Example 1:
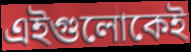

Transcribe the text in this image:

এইগুলোকেই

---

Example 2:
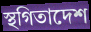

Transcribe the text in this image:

স্থগিতাদেশ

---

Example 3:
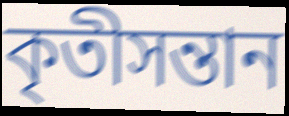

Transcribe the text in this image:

কৃতীসন্তান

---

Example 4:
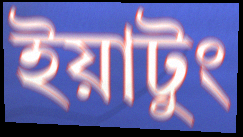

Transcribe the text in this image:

ইয়াটুং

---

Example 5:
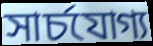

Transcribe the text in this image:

সার্চযোগ্য